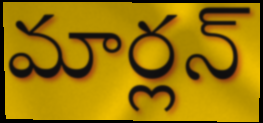
మార్లన్